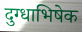
दुग्धाभिषेक